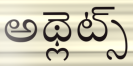
అథ్లెట్స్